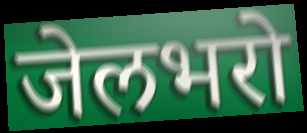
जेलभरो